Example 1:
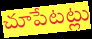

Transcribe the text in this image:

చూపేటట్లు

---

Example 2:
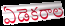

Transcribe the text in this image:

ఏడెకరాల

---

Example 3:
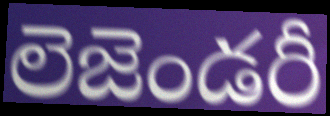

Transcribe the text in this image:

లెజెండరీ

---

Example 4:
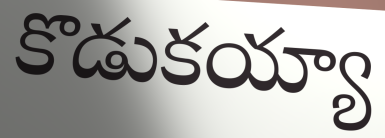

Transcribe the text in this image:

కొడుకయ్యా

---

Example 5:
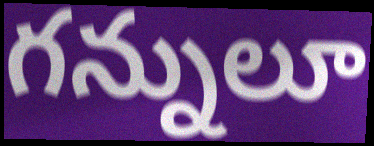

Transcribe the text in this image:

గన్నులూ